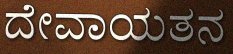
ದೇವಾಯತನ